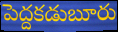
పెద్దకడుబూరు